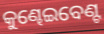
କୁଣ୍ଢେଇବେଣ୍ଟ